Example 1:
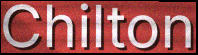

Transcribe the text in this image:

Chilton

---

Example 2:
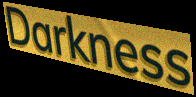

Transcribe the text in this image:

Darkness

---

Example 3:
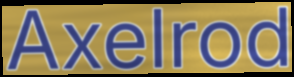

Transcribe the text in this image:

Axelrod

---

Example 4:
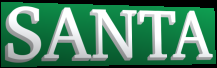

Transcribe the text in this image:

SANTA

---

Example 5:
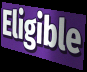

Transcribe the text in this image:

Eligible